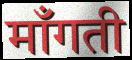
माँगती